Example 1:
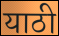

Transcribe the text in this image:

याठी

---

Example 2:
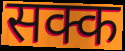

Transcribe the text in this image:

सक्क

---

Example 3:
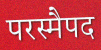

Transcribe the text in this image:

परस्मैपद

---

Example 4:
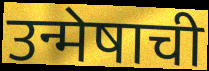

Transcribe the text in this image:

उन्मेषाची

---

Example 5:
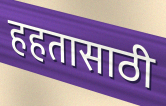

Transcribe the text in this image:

हहतासाठी